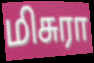
மிசுரா